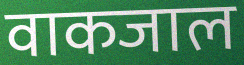
वाकजाल